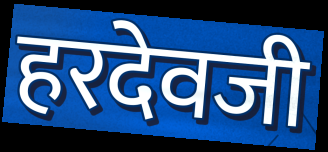
हरदेवजी